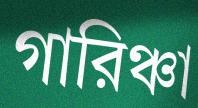
গারিঞ্চা